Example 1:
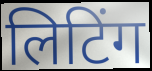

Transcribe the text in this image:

लिटिंग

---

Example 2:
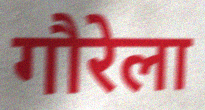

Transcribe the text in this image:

गौरेला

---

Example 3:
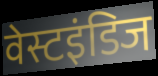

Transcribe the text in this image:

वेस्टइंडिज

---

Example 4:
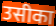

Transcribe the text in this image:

उसीका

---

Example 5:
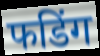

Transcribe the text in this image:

फडिंग